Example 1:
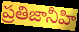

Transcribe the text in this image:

ప్రతిజానీహి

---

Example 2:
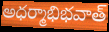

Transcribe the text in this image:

అధర్మాభిభవాత్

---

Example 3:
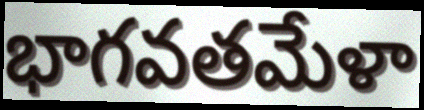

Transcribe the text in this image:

భాగవతమేళా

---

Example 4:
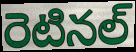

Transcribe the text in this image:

రెటినల్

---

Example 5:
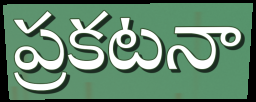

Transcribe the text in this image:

ప్రకటనా